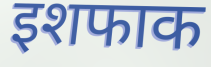
इशफाक